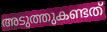
അടുത്തുകണ്ടത്